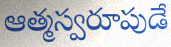
ఆత్మస్వరూపుడే